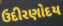
ઉદીરણોદય